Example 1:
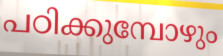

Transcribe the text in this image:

പഠിക്കുമ്പോഴും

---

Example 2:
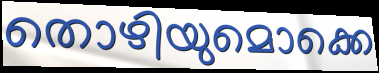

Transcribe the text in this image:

തൊഴിയുമൊക്കെ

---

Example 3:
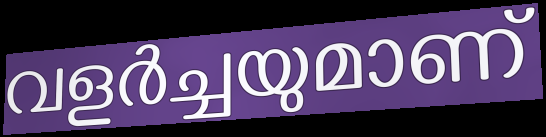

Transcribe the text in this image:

വളർച്ചയുമാണ്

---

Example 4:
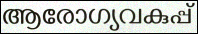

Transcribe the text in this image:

ആരോഗ്യവകുപ്പ്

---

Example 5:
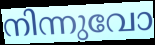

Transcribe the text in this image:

നിന്നുവോ